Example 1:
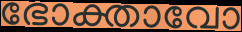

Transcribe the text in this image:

ഭോക്താവോ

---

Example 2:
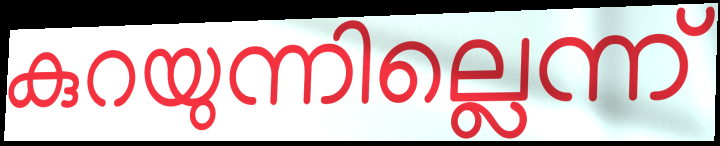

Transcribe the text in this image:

കുറയുന്നില്ലെന്ന്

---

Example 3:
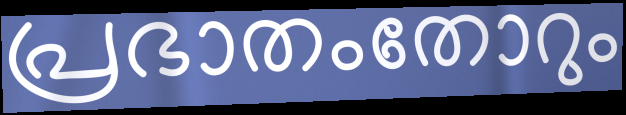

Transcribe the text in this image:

പ്രഭാതംതോറും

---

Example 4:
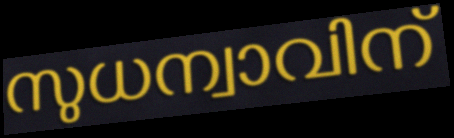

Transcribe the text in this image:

സുധന്വാവിന്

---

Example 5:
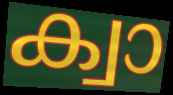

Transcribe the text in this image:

ക്വാ